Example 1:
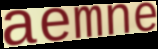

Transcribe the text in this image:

aemne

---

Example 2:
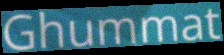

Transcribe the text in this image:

Ghummat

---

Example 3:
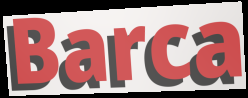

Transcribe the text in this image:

Barca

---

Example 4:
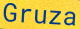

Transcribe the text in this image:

Gruza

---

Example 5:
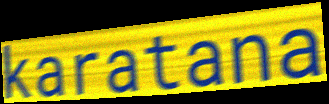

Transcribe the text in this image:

karatana